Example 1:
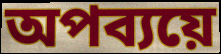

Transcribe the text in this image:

অপব্যয়ে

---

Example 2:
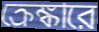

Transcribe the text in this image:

ক্রেঙ্কারে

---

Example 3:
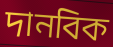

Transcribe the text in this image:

দানবিক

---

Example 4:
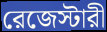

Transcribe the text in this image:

রেজেস্টারী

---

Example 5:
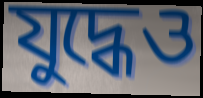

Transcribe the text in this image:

যুদ্ধেও